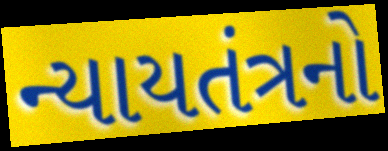
ન્યાયતંત્રનો